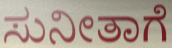
ಸುನೀತಾಗೆ